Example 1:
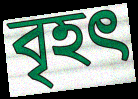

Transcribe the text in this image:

বৃহৎ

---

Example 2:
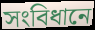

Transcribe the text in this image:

সংবিধানে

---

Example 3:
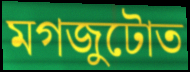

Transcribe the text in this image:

মগজুটোত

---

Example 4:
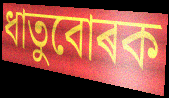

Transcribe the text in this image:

ধাতুবোৰক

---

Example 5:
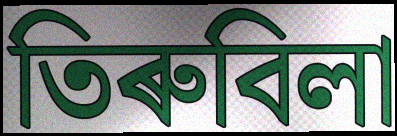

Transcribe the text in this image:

তিৰুবিলা